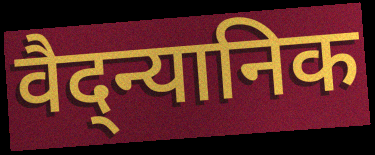
वैद्न्यानिक